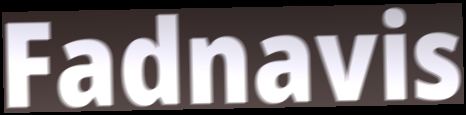
Fadnavis